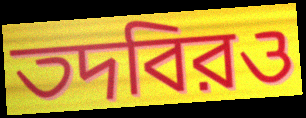
তদবিরও